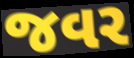
જવર